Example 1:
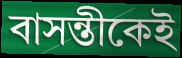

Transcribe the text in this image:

বাসন্তীকেই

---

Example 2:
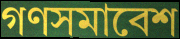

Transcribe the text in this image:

গণসমাবেশ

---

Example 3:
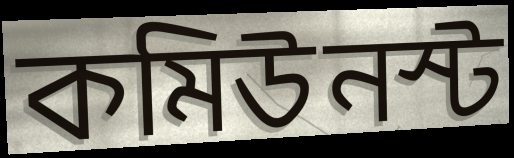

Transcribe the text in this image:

কমিউনস্ট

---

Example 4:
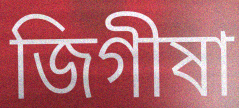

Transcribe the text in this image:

জিগীষা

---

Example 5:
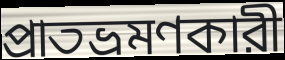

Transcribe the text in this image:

প্রাতভ্রমণকারী